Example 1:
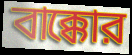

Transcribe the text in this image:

বাক্কোর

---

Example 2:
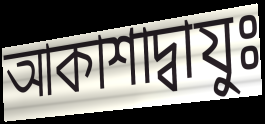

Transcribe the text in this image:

আকাশাদ্বাযুঃ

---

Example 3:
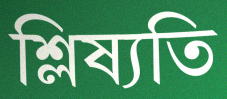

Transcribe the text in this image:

শ্লিষ্যতি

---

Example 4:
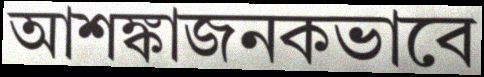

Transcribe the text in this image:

আশঙ্কাজনকভাবে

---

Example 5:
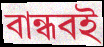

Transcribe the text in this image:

বান্ধবই